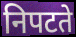
निपटते